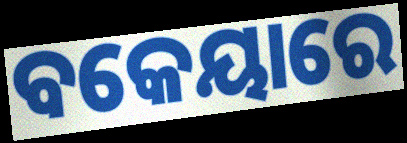
ବକେୟାରେ